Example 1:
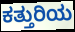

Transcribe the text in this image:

ಕತ್ತುರಿಯ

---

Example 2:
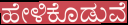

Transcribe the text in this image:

ಹೇಳಿಕೊಡುವೆ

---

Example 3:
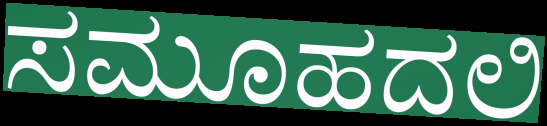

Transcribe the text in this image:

ಸಮೂಹದಲಿ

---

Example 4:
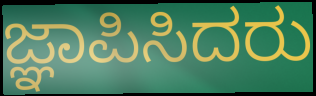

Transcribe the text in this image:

ಜ್ಞಾಪಿಸಿದರು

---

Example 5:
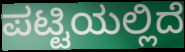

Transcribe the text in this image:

ಪಟ್ಟಿಯಲ್ಲಿದೆ